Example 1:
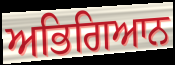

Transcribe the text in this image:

ਅਭਿਗਿਆਨ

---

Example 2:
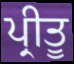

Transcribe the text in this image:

ਪ੍ਰੀਤੂ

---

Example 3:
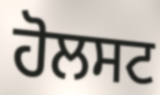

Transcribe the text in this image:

ਹੋਲਸਟ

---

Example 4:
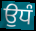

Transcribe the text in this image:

ਉਧੰ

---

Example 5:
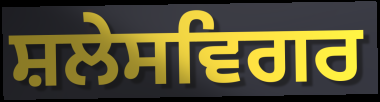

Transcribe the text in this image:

ਸ਼ਲੇਸਵਿਗਰ